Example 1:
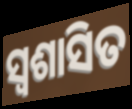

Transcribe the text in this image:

ସ୍ୱଶାସିତ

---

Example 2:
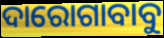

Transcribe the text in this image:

ଦାରୋଗାବାବୁ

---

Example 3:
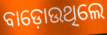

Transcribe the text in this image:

ବାଡ଼ୋଉଥିଲେ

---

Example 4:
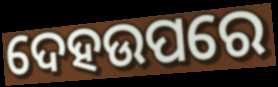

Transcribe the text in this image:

ଦେହଉପରେ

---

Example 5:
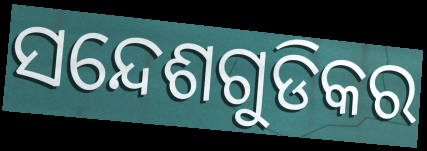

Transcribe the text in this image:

ସନ୍ଦେଶଗୁଡିକର